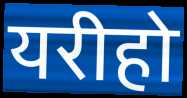
यरीहो